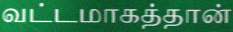
வட்டமாகத்தான்